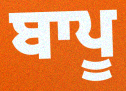
ਬਾਪੂ